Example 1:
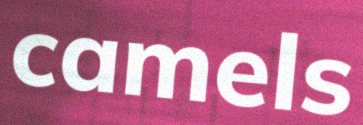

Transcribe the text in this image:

camels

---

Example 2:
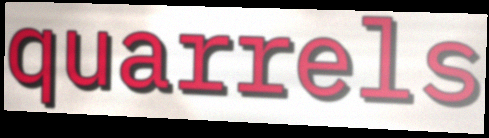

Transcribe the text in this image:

quarrels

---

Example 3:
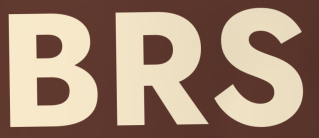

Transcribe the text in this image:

BRS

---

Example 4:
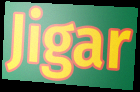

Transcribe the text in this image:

Jigar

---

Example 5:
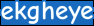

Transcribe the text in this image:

ekgheye